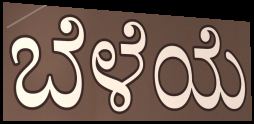
ಬೆಳೆಯೆ